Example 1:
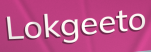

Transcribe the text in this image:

Lokgeeto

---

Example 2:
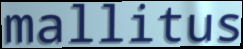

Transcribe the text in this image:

mallitus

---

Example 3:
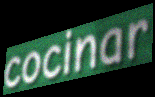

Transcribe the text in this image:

cocinar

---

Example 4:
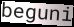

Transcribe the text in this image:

beguni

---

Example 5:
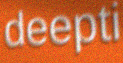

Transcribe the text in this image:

deepti